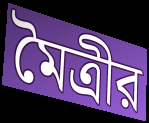
মৈত্রীর